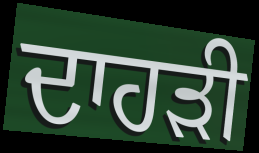
ਦਾਹੜੀ